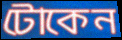
টোকেন